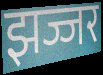
झज्जर